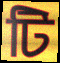
টি